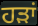
ਹੜਾਂ